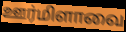
ஊர்மிளாவை